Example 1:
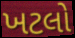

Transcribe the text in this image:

ખટલો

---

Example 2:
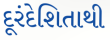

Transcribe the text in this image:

દૂરંદેશિતાથી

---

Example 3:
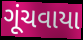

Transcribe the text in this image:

ગૂંચવાયા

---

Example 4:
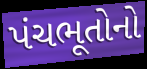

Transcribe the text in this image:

પંચભૂતોનો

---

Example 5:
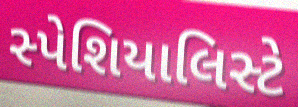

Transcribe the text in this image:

સ્પેશિયાલિસ્ટે